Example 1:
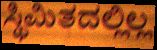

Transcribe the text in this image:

ಸ್ಥಿಮಿತದಲ್ಲಿಲ್ಲ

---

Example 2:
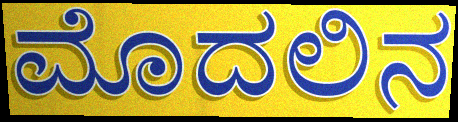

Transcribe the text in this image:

ಮೊದಲಿನ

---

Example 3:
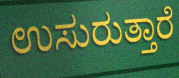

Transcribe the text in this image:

ಉಸುರುತ್ತಾರೆ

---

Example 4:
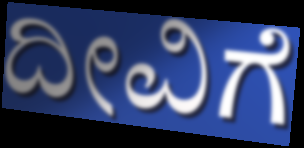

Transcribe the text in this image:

ದೀವಿಗೆ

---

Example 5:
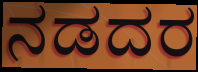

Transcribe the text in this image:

ನಡದರ